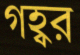
গহ্বর